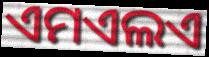
ଏମଏଲଏ